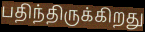
பதிந்திருக்கிறது